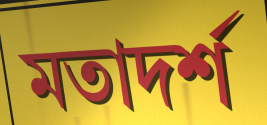
মতাদৰ্শ